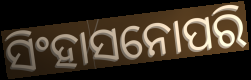
ସିଂହାସନୋପରି